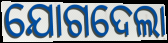
ଯୋଗଦେଲା